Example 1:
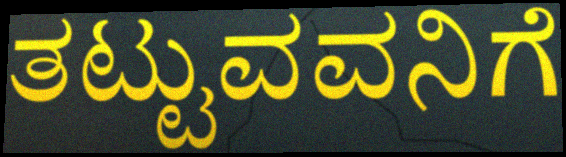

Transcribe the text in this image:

ತಟ್ಟುವವನಿಗೆ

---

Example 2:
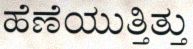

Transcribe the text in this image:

ಹೆಣೆಯುತ್ತಿತ್ತು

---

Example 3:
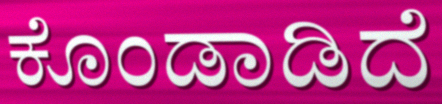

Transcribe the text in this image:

ಕೊಂಡಾಡಿದೆ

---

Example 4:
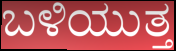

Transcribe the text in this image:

ಬಳಿಯುತ್ತ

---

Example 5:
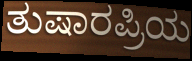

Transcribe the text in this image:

ತುಷಾರಪ್ರಿಯ